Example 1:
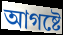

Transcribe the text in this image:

আগষ্টে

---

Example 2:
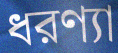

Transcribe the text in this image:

ধরণ্যা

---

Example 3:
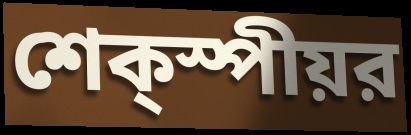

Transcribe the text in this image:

শেক্স্পীয়র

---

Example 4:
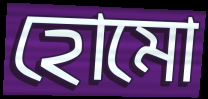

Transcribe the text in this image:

হোমো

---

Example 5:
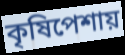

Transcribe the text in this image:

কৃষিপেশায়